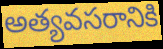
అత్యవసరానికి